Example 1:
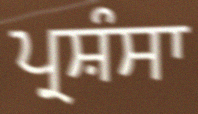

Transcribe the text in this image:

ਪ੍ਰਸ਼ੰਸਾ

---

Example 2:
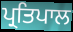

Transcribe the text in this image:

ਪ੍ਰਤਿਪਾਲ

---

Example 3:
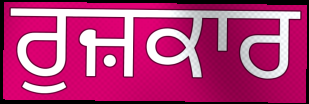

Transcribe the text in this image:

ਰੁਜ਼ਕਾਰ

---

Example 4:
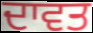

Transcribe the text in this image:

ਦਾਵਤ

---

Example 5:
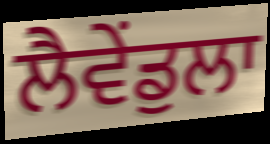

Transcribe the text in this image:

ਲੈਵੇਂਡੁਲਾ